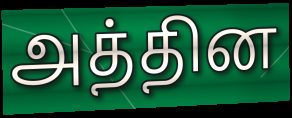
அத்தின